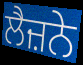
ਲੈਜ਼ਨੇ